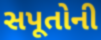
સપૂતોની